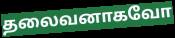
தலைவனாகவோ